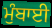
ਮੁੰਬਾਈ